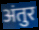
अंतुर